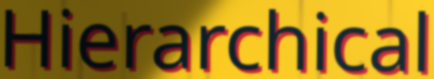
Hierarchical